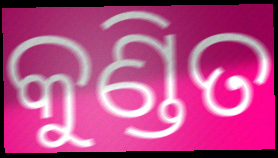
କୁଣ୍ଡିତ